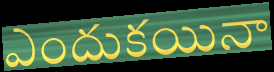
ఎందుకయినా